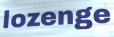
lozenge